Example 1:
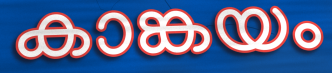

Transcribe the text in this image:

കാങ്കയം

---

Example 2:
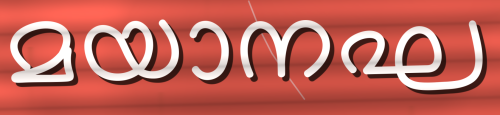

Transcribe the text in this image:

മയാനഘ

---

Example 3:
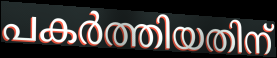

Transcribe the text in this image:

പകർത്തിയതിന്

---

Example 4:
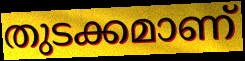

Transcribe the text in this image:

തുടക്കമാണ്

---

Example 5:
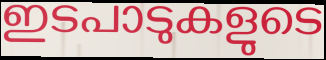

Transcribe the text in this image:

ഇടപാടുകളുടെ